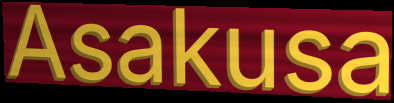
Asakusa